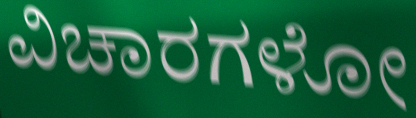
ವಿಚಾರಗಳೋ